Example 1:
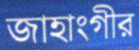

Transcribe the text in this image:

জাহাংগীর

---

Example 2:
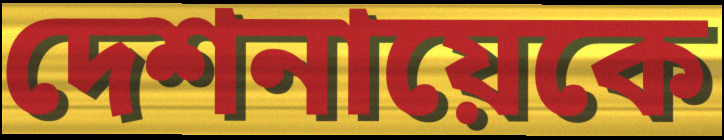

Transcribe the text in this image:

দেশনায়েকে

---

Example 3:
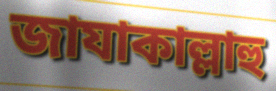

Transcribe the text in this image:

জাযাকাল্লাহু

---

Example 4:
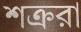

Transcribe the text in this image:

শক্ররা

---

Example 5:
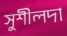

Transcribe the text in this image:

সুশীলদা